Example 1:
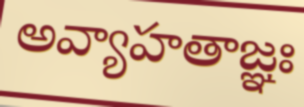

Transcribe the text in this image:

అవ్యాహతాజ్ఞః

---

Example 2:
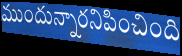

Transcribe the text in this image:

ముందున్నారనిపించింది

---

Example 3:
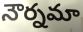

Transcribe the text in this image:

నౌర్నమా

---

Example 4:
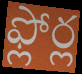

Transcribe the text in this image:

ఫ్లోర్ల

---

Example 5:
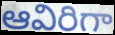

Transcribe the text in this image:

ఆవిరిగా